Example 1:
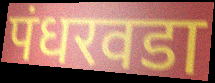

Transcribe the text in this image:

पंधरवडा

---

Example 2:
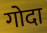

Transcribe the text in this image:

गोदा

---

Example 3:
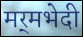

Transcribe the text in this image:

मर्मभेदी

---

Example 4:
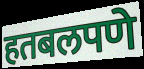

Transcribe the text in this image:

हतबलपणे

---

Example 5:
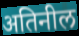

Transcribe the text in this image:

अतिनील